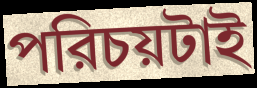
পরিচয়টাই